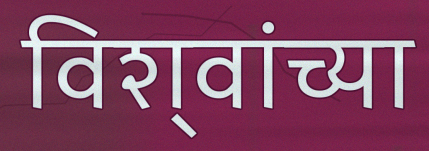
विश्वांच्या